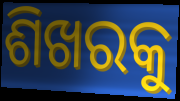
ଶିଖରକୁ